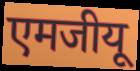
एमजीयू